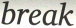
break